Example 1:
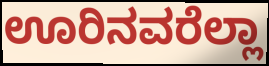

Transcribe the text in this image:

ಊರಿನವರೆಲ್ಲಾ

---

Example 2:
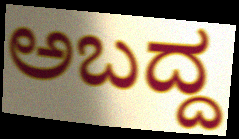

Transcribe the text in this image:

ಅಬದ್ದ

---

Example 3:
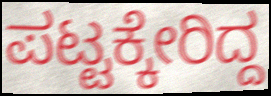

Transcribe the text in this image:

ಪಟ್ಟಕ್ಕೇರಿದ್ದ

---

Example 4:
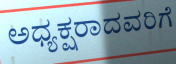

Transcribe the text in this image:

ಅಧ್ಯಕ್ಷರಾದವರಿಗೆ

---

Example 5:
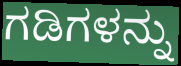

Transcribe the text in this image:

ಗಡಿಗಳನ್ನು